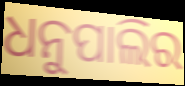
ଧନୁପାଲିର